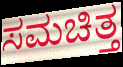
ಸಮಚಿತ್ತ